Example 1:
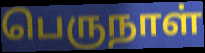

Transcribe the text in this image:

பெருநாள்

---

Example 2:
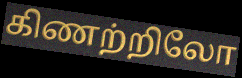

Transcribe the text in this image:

கிணற்றிலோ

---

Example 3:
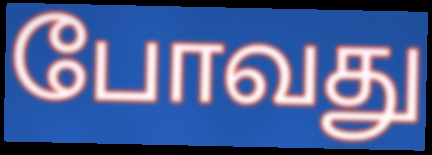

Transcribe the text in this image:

போவது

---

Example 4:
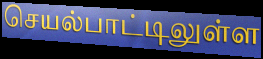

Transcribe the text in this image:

செயல்பாட்டிலுள்ள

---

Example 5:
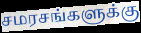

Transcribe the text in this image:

சமரசங்களுக்கு